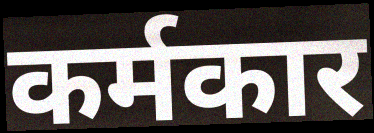
कर्मकार